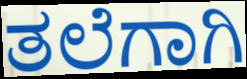
ತಲೆಗಾಗಿ